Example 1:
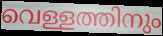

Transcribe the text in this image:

വെള്ളത്തിനും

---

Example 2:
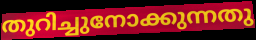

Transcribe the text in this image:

തുറിച്ചുനോക്കുന്നതു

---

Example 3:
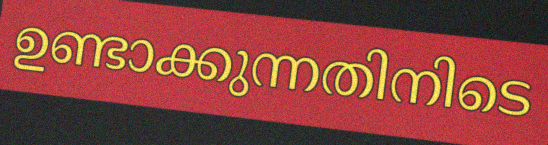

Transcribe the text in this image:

ഉണ്ടാക്കുന്നതിനിടെ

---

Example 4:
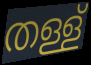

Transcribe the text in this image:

തള്ള്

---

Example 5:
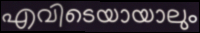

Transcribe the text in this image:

എവിടെയായാലും